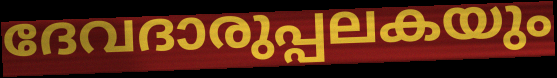
ദേവദാരുപ്പലകയും